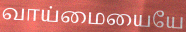
வாய்மையையே